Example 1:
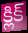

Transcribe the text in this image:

క్లిక్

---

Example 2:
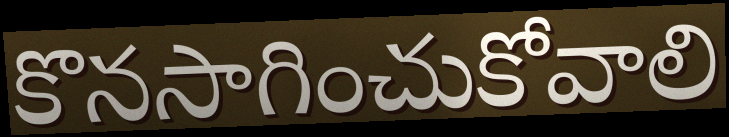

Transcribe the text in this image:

కొనసాగించుకోవాలి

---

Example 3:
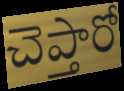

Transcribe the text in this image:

చెప్తారో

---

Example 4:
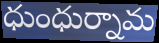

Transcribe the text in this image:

ధుంధుర్నామ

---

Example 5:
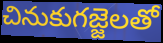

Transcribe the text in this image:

చినుకుగజ్జెలతో